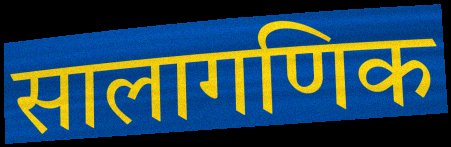
सालागणिक